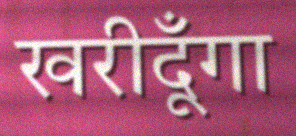
खरीदूँगा